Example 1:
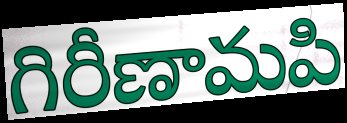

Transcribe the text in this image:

గిరీణామపి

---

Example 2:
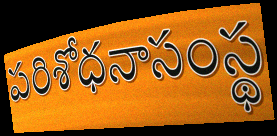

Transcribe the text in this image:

పరిశోధనాసంస్థ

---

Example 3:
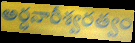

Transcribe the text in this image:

అర్ధనారీశ్వరత్వం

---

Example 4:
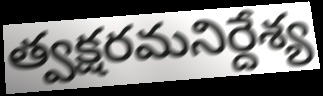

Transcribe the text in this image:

త్వక్షరమనిర్దేశ్య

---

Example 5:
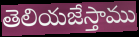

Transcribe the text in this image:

తెలియజేస్తాము